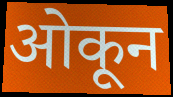
ओकून